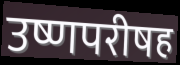
उष्णपरीषह